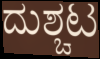
ದುಶ್ಚಟ